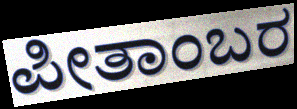
ಪೀತಾಂಬರ